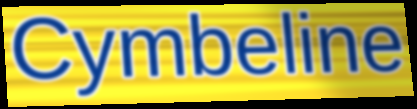
Cymbeline